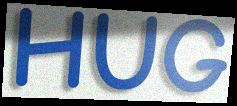
HUG